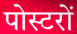
पोस्टरों